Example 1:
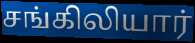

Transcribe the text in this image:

சங்கிலியார்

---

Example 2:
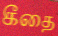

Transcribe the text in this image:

கீதை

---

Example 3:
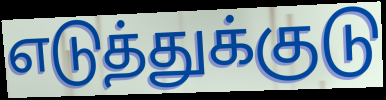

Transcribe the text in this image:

எடுத்துக்குடு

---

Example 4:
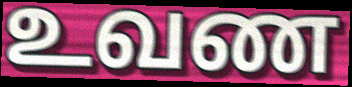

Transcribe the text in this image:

உவண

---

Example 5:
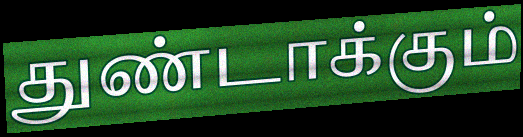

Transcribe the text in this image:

துண்டாக்கும்